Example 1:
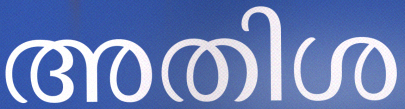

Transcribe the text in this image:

അതിശ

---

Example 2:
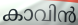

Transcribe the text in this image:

കാവിൻ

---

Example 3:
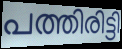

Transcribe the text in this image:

പത്തിരിട്ടി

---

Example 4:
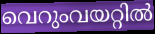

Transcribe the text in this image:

വെറുംവയറ്റിൽ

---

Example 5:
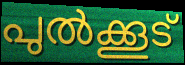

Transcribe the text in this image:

പുൽക്കൂട്